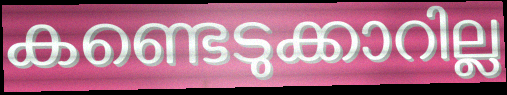
കണ്ടെടുക്കാറില്ല